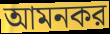
আমনকর